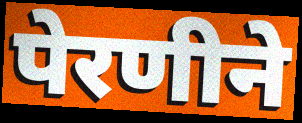
पेरणीने